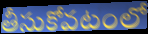
తీసుకోవటంలో